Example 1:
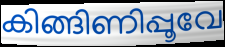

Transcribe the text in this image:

കിങ്ങിണിപ്പൂവേ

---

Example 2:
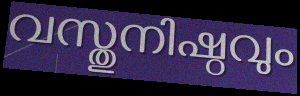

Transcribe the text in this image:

വസ്തുനിഷ്ഠവും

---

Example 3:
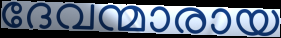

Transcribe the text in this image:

ദേവന്മാരായ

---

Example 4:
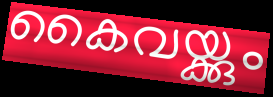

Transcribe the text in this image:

കൈവയ്ക്കും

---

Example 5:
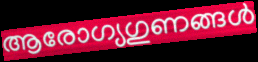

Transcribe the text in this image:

ആരോഗ്യഗുണങ്ങൾ